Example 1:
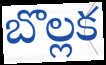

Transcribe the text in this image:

బొల్లక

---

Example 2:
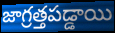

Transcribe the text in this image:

జాగ్రత్తపడ్డాయి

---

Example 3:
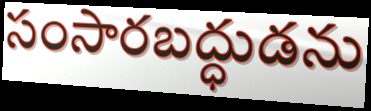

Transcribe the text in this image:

సంసారబద్ధుడను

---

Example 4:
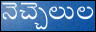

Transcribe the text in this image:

నెచ్చెలుల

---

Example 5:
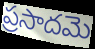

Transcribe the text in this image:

ప్రసాదమె